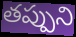
తప్పుని